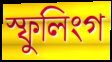
স্ফুলিংগ